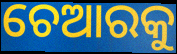
ଚେଆରକୁ